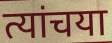
त्यांचया